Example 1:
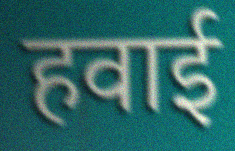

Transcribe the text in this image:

हवाई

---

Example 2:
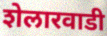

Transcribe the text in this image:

शेलारवाडी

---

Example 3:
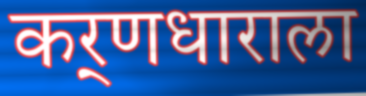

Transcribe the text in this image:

कर्णधाराला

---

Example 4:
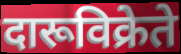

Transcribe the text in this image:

दारूविक्रेते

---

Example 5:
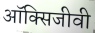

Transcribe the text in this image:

ऑक्सिजीवी